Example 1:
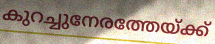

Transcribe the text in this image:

കുറച്ചുനേരത്തേയ്ക്ക്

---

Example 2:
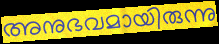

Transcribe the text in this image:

അനുഭവമായിരുന്നു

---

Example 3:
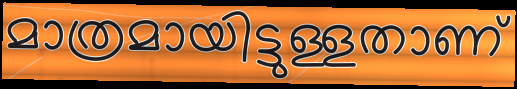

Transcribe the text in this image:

മാത്രമായിട്ടുള്ളതാണ്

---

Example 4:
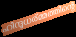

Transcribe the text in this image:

ഹിന്ദുധര്മ്മത്തിന്റെ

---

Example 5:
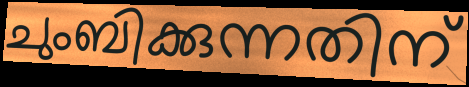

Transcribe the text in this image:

ചുംബിക്കുന്നതിന്